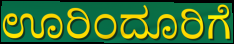
ಊರಿಂದೂರಿಗೆ